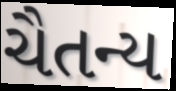
ચૈતન્ય